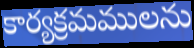
కార్యక్రమములను